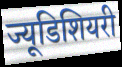
ज्यूडिशियरी